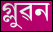
গ্লুৱন